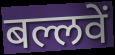
बल्लवें